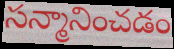
సన్మానించడం